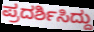
ಪ್ರದರ್ಶಿಸಿದ್ದು